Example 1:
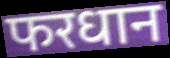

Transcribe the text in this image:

फरधान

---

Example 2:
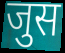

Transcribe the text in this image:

जुस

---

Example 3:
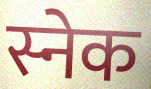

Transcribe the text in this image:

स्‍नेक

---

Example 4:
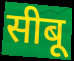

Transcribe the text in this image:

सीबू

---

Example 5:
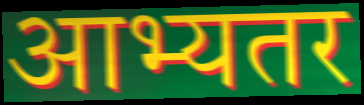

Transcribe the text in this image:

आभ्यतर